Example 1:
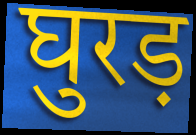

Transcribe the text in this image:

घुरड़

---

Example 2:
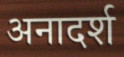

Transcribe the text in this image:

अनादर्श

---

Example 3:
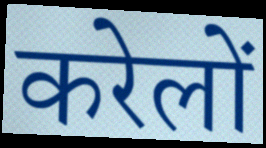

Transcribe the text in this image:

करेलों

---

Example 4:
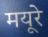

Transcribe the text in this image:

मयूरे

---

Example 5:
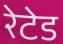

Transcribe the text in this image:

रेटेड